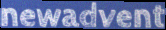
newadvent